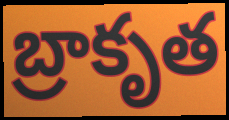
బ్రాకృత